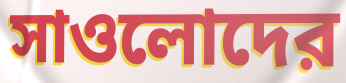
সাওলোদের